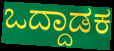
ಒದ್ದಾಡಕ